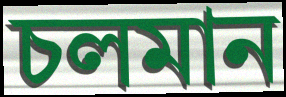
চলমান